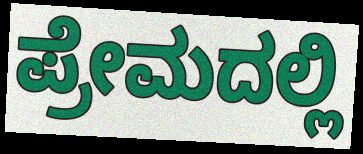
ಪ್ರೇಮದಲ್ಲಿ